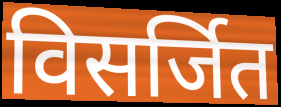
विसर्जित